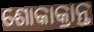
ଶୋକାକ୍ରାନ୍ତ